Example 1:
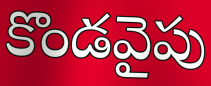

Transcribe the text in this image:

కొండవైపు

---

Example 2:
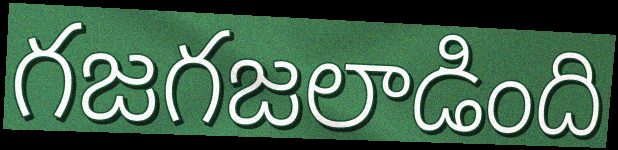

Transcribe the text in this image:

గజగజలాడింది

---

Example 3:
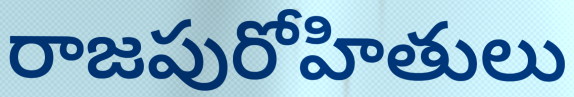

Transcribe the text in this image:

రాజపురోహితులు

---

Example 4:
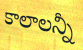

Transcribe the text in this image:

కాలాలన్నీ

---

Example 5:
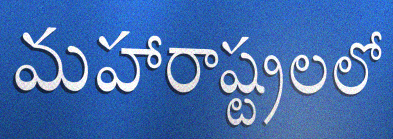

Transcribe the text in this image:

మహారాష్ట్రలలో